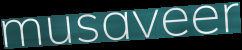
musaveer